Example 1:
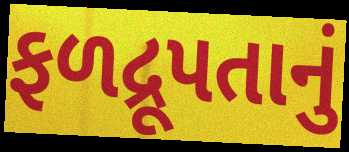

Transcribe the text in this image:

ફળદ્રૂપતાનું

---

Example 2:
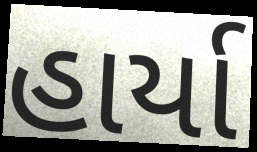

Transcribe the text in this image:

હાર્યા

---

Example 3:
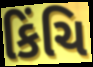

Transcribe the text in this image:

કિંચિ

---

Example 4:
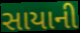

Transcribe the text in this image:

સાયાની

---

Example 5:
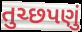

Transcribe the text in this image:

તુચ્છપણું